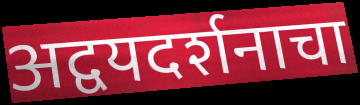
अद्वयदर्शनाचा